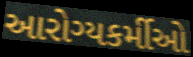
આરોગ્યકર્મીઓ